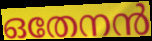
ഒതേനൻ